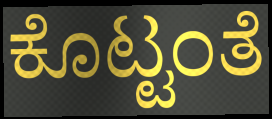
ಕೊಟ್ಟಂತೆ